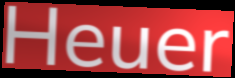
Heuer